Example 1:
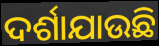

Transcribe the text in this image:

ଦର୍ଶାଯାଉଛି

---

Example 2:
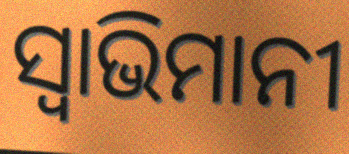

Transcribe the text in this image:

ସ୍ବାଭିମାନୀ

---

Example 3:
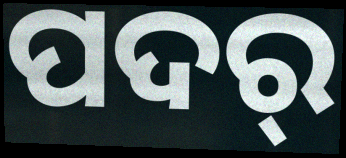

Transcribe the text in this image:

ପଦର୍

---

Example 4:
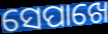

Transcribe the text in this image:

ସେପାଖେ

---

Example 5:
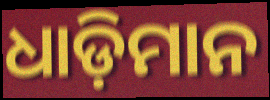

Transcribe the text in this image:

ଧାଡ଼ିମାନ